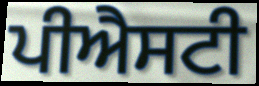
ਪੀਐਸਟੀ